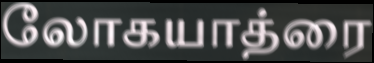
லோகயாத்ரை